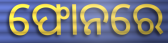
ଫୋନରେ